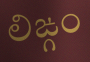
లిఙ్గం